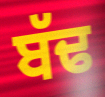
ਬੱਢ